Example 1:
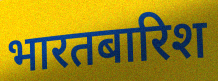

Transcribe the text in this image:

भारतबारिश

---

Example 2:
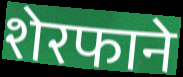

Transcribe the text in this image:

शेरफाने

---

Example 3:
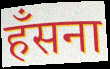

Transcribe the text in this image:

हँसना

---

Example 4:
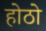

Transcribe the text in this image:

होठो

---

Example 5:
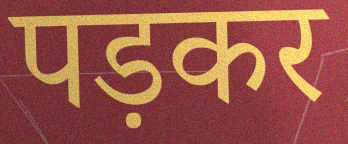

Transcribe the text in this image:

पड़कर